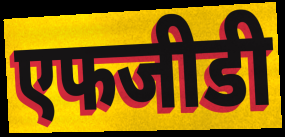
एफजीडी